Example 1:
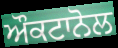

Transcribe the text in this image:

ਔਕਟਾਨੋਲ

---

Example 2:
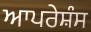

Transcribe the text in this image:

ਆਪਰੇਸ਼ੰਸ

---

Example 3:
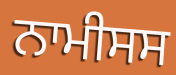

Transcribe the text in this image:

ਨਾਮੀਸਸ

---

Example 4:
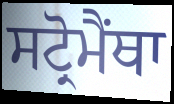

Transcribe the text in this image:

ਸਟ੍ਰੋਮੈਂਥਾ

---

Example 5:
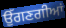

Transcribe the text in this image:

ਉੱਗਣਗੀਆਂ